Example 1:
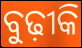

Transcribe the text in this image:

ବୁଢ଼ୀକି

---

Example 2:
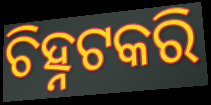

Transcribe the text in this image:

ଚିହ୍ନଟକରି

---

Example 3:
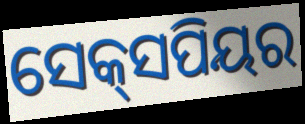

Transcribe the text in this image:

ସେକ୍‍ସପିୟର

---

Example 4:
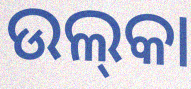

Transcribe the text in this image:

ଉଲ୍‌କା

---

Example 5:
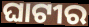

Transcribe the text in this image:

ଘାଟୀର